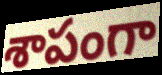
శాపంగా